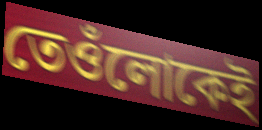
তেওঁলোকেই